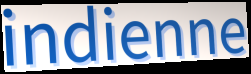
indienne